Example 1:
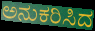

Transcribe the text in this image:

ಅನುಕರಿಸಿದ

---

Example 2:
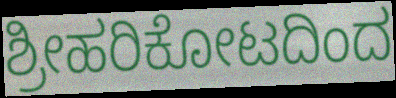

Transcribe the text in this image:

ಶ್ರೀಹರಿಕೋಟದಿಂದ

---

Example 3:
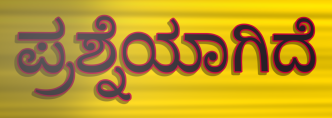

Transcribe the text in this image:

ಪ್ರಶ್ನೆಯಾಗಿದೆ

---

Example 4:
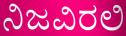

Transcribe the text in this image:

ನಿಜವಿರಲಿ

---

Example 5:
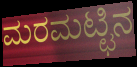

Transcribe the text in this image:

ಮರಮಟ್ಟಿನ